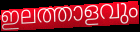
ഇലത്താളവും